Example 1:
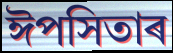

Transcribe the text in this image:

ঈপসিতাৰ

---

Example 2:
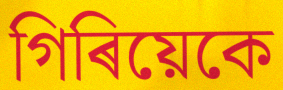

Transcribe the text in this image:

গিৰিয়েকে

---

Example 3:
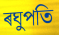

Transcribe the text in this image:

ৰঘুপতি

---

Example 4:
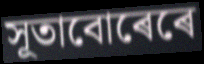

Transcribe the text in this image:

সূতাবোৰেৰে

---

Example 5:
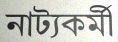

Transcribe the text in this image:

নাট্যকৰ্মী